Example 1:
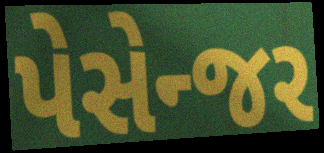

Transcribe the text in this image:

પેસેન્જર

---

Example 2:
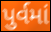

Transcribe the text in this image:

પુર્વમાં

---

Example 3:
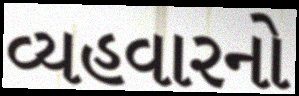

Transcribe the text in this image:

વ્યહવારનો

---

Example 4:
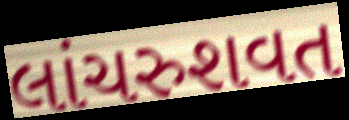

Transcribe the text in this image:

લાંચરુશવત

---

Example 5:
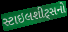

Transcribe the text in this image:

સ્ટાઇલશીટ્સનો